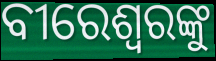
ବୀରେଶ୍ୱରଙ୍କୁ